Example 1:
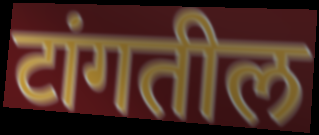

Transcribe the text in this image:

टांगतील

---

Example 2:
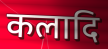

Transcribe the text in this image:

कलादि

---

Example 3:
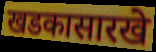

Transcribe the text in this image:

खडकासारखे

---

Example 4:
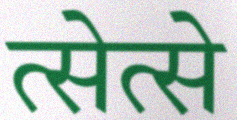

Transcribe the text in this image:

त्सेत्से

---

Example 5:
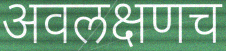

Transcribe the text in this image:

अवलक्षणच